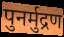
पुनर्मुद्रण